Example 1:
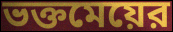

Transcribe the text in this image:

ভক্তমেয়ের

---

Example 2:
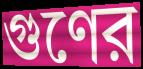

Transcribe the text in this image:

গুণের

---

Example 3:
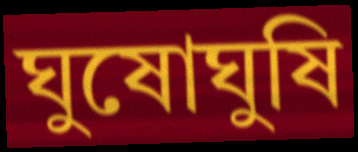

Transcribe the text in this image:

ঘুষোঘুষি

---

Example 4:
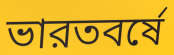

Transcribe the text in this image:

ভারতবর্ষে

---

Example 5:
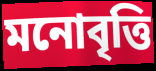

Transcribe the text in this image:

মনোবৃত্তি